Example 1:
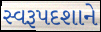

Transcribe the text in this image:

સ્વરૂપદશાને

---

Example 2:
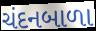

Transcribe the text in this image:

ચંદનબાળા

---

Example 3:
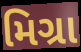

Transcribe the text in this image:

મિગ્રા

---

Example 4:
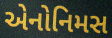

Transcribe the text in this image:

એનોનિમસ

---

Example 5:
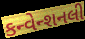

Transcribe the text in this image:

કન્વેન્શનલી